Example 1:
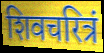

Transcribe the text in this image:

शिवचरित्रं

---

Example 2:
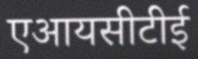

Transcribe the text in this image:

एआयसीटीई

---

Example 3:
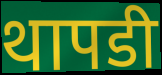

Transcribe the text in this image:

थापडी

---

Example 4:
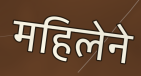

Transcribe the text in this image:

महिलेने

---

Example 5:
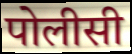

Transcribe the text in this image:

पोलीसी